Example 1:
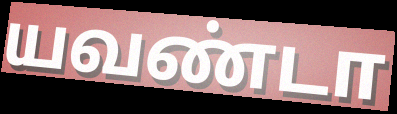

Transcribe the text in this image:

யவண்டா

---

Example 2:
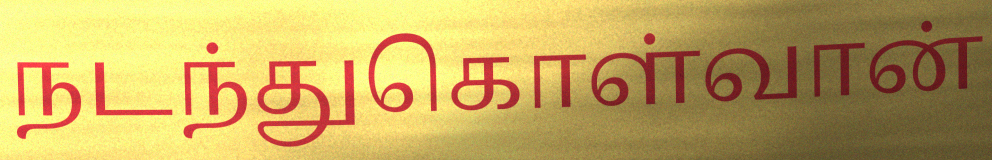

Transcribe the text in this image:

நடந்துகொள்வான்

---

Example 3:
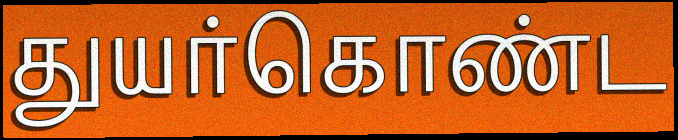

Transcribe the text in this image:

துயர்கொண்ட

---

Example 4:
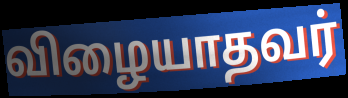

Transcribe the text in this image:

விழையாதவர்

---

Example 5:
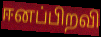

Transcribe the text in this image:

ஈனப்பிறவி